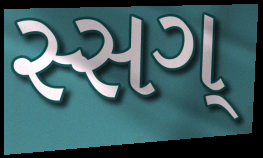
સ્સગ્